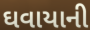
ઘવાયાની